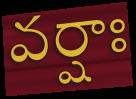
వర్షాః